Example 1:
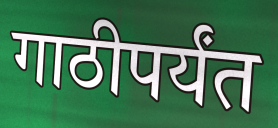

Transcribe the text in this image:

गाठीपर्यंत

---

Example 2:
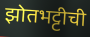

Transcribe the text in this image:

झोतभट्टीची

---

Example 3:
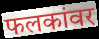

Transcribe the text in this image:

फलकांवर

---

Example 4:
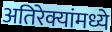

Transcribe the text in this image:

अतिरेक्यांमध्ये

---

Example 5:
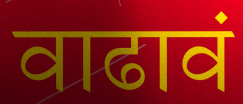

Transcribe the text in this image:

वाढावं